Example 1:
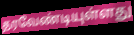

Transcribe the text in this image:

தரவேண்டியுள்ளது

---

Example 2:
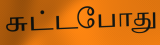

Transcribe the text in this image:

சுட்டபோது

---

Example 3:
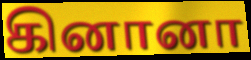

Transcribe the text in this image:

கினானா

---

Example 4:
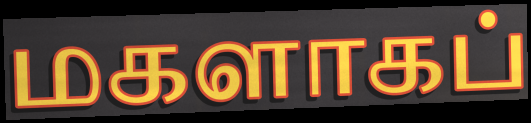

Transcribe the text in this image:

மகளாகப்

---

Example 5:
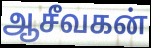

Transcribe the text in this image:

ஆசீவகன்